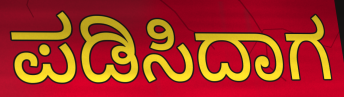
ಪಡಿಸಿದಾಗ